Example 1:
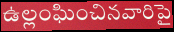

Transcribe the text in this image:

ఉల్లంఘించినవారిపై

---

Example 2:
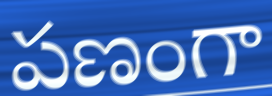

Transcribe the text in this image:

పణంగా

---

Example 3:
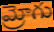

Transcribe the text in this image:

మ్రోగు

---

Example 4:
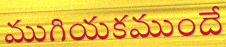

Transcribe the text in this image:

ముగియకముందే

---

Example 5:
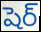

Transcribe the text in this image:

షెర్